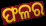
ଫଳର